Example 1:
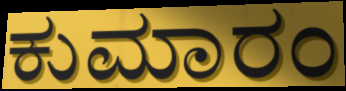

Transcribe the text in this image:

ಕುಮಾರಂ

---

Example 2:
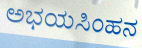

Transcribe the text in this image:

ಅಭಯಸಿಂಹನ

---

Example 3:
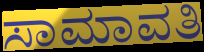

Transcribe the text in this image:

ಸಾಮಾವತಿ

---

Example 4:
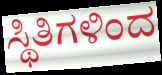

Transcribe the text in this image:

ಸ್ಥಿತಿಗಳಿಂದ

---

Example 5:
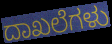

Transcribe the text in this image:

ದಾಖಲೆಗಳು